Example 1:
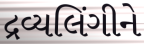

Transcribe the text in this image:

દ્રવ્યલિંગીને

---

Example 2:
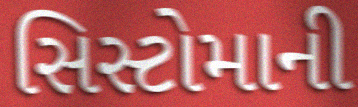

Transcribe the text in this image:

સિસ્ટોમાની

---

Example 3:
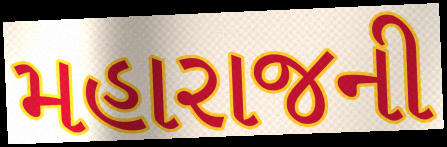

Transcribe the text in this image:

મહારાજની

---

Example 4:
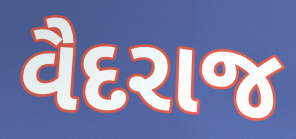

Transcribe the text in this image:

વૈદરાજ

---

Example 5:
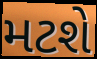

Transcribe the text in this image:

મટશે